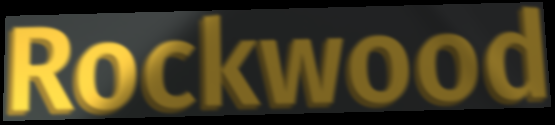
Rockwood